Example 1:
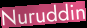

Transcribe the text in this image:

Nuruddin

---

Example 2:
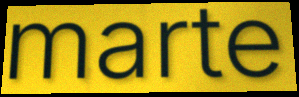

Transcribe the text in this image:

marte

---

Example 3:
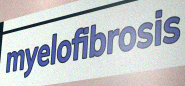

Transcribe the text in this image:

myelofibrosis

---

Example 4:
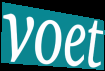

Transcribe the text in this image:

voet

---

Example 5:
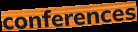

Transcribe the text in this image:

conferences